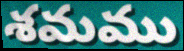
శమము